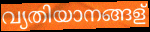
വ്യതിയാനങ്ങള്